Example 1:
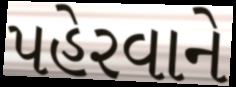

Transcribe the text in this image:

પહેરવાને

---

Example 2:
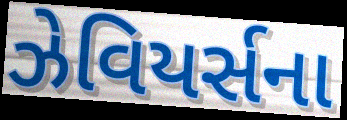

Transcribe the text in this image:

ઝેવિયર્સના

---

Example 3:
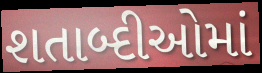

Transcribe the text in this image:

શતાબ્દીઓમાં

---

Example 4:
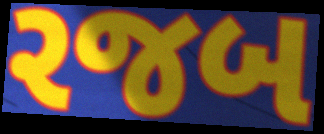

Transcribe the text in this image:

રજબ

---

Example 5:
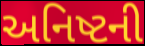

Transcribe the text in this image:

અનિષ્ટની